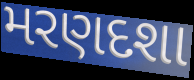
મરણદશા